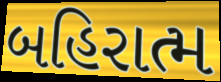
બહિરાત્મ